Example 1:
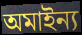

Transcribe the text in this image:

অমাইন্য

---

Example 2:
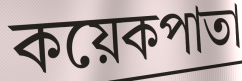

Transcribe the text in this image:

কয়েকপাতা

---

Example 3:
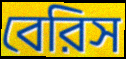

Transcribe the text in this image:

বেরিস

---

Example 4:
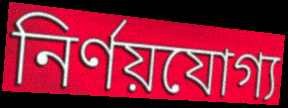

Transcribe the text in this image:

নির্ণয়যোগ্য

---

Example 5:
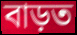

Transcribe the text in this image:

বাড়ত